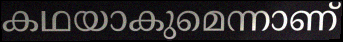
കഥയാകുമെന്നാണ്